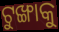
ଟୁଙ୍ଖାକୁ